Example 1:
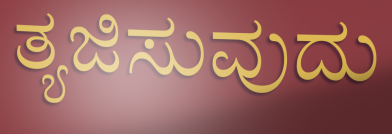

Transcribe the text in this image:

ತ್ಯಜಿಸುವುದು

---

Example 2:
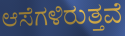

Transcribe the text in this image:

ಆಸೆಗಳಿರುತ್ತವೆ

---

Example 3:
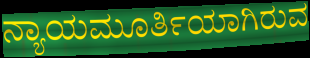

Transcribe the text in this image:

ನ್ಯಾಯಮೂರ್ತಿಯಾಗಿರುವ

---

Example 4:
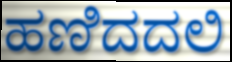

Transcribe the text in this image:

ಹಣಿದದಲಿ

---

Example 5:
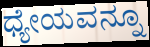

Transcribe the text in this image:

ಧ್ಯೇಯವನ್ನೂ